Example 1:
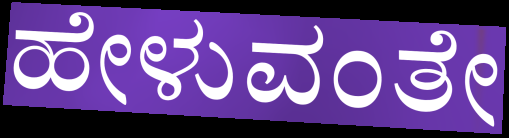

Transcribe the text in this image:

ಹೇಳುವಂತೇ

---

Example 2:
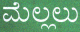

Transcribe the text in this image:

ಮೆಲ್ಲಲು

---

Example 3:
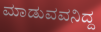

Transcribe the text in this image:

ಮಾಡುವವನಿದ್ದ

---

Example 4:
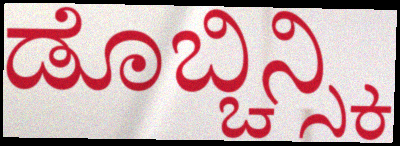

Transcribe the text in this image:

ಡೊಬ್ಚಿನ್ಸ್ಕಿ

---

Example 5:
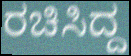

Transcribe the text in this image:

ರಚಿಸಿದ್ದ